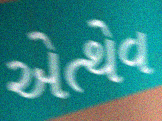
એત્થેવ